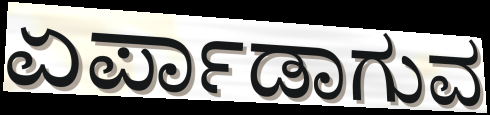
ಏರ್ಪಾಡಾಗುವ